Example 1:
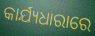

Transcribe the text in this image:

କାର୍ଯ୍ୟଧାରାରେ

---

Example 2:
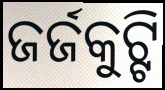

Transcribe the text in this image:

ଜର୍ଜକୁଟ୍ଟି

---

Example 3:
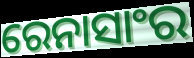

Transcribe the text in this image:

ରେନାସାଂର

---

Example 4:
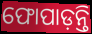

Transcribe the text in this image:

ଫୋପାଡ଼ନ୍ତି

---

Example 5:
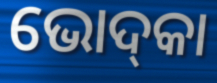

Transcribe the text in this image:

ଭୋଦ୍‌କା